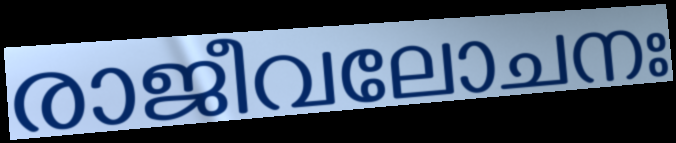
രാജീവലോചനഃ